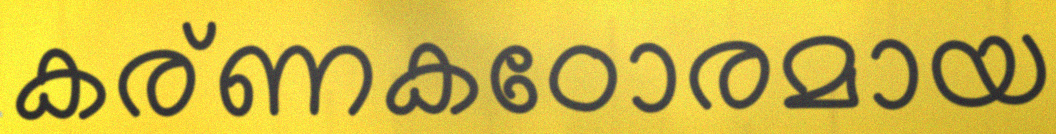
കര്ണകഠോരമായ